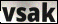
vsak